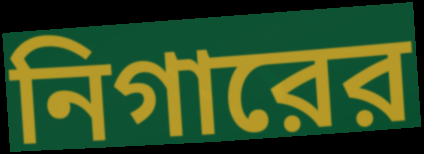
নিগারের